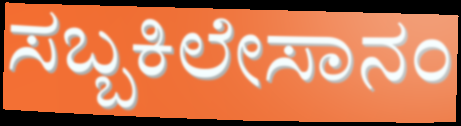
ಸಬ್ಬಕಿಲೇಸಾನಂ